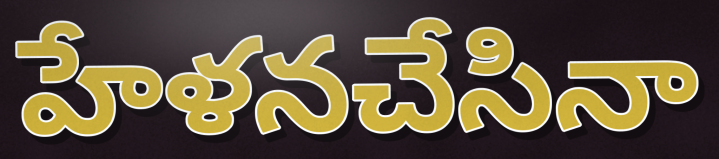
హేళనచేసినా